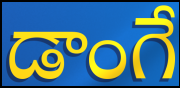
డాంగే